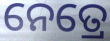
ନେତ୍ରେ